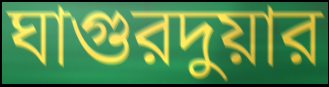
ঘাগুরদুয়ার